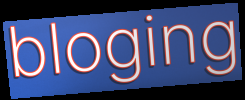
bloging